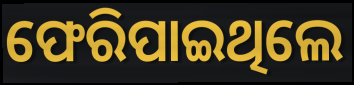
ଫେରିପାଇଥିଲେ